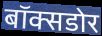
बॉक्सडोर